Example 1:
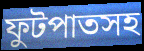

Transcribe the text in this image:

ফুটপাতসহ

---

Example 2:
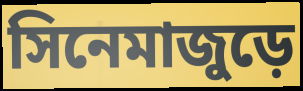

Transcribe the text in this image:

সিনেমাজুড়ে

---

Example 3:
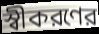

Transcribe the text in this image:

স্বীকরণের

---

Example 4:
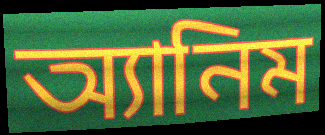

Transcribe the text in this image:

অ্যানিম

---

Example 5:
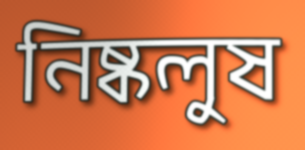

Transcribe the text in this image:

নিষ্কলুষ